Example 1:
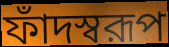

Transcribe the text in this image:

ফাঁদস্বরূপ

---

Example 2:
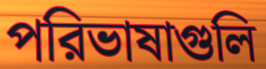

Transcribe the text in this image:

পরিভাষাগুলি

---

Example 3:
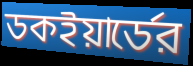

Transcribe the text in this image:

ডকইয়ার্ডের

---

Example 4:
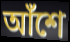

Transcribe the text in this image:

আঁশে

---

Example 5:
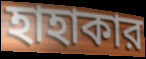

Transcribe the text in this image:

হাহাকার